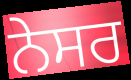
ਨੇਸਰ